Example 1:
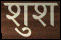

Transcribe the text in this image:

शुश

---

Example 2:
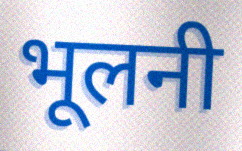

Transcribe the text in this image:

भूलनी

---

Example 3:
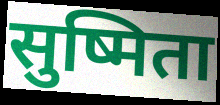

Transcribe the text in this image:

सुष्मिता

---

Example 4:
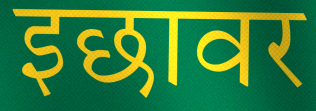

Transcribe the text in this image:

इछावर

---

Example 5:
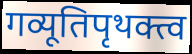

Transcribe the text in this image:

गव्यूतिपृथक्त्व